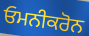
ਓਮਨੀਕਰੋਨ